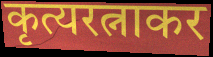
कृत्यरत्नाकर